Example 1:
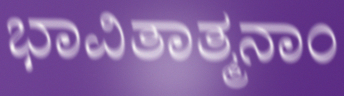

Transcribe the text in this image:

ಭಾವಿತಾತ್ಮನಾಂ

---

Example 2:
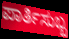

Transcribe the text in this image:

ಪಾರ್ತಿಸುಬ್ಬ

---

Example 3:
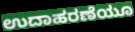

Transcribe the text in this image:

ಉದಾಹರಣೆಯೂ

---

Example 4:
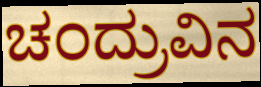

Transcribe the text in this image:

ಚಂದ್ರುವಿನ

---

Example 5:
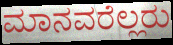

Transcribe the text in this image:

ಮಾನವರೆಲ್ಲರು